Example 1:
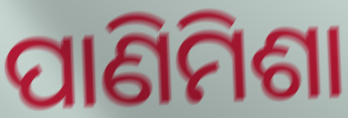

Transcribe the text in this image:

ପାଣିମିଶା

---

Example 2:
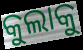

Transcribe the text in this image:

କୁଲାକୁ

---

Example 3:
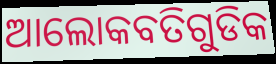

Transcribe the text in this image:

ଆଲୋକବତିଗୁଡିକ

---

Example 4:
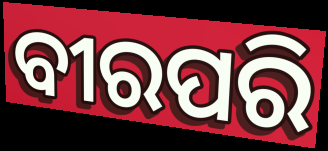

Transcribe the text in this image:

ବୀରପରି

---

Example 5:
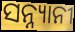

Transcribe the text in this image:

ସନ୍ନ୍ୟାନୀ